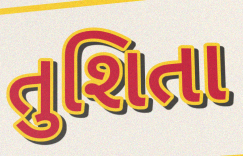
તુશિતા